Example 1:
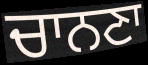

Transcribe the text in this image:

ਚਾਨਣਾ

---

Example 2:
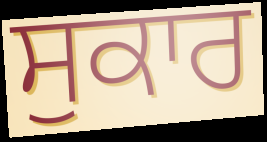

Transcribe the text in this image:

ਸੁਕਾਰ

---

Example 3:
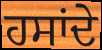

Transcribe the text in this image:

ਹਸਾਂਦੇ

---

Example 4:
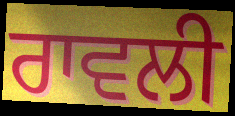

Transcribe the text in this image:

ਰਾਵਲੀ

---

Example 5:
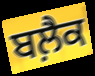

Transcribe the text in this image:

ਬਲ਼ੈਕ